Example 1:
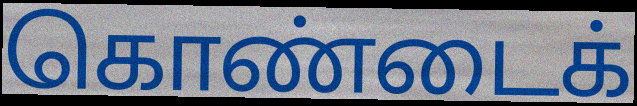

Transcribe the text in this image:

கொண்டைக்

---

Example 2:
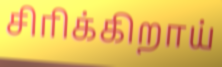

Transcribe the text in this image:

சிரிக்கிறாய்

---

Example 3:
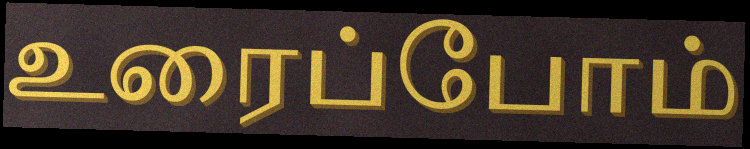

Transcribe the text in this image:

உரைப்போம்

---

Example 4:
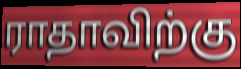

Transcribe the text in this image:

ராதாவிற்கு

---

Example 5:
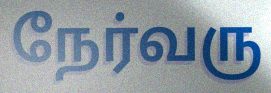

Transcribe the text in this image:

நேர்வரு